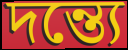
দন্ত্যে